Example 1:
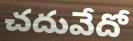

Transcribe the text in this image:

చదువేదో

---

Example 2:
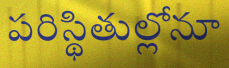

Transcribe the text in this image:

పరిస్థితుల్లోనూ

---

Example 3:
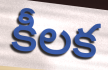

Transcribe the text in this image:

కీలక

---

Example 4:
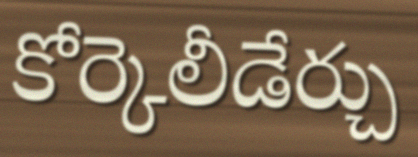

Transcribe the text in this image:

కోర్కెలీడేర్చు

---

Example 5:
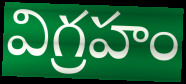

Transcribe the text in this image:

విగ్రహం